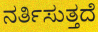
ನರ್ತಿಸುತ್ತದೆ